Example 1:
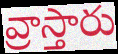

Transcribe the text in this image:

వ్రాస్తారు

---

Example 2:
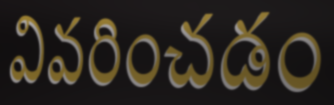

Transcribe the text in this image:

వివరించడం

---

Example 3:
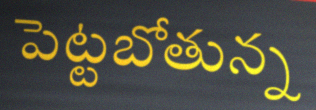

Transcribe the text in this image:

పెట్టబోతున్న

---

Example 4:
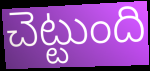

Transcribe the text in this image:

చెట్టుంది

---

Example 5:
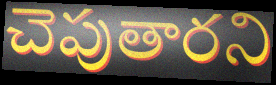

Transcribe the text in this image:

చెపుతారని